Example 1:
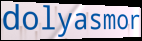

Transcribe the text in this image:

dolyasmor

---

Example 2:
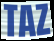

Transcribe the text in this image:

TAZ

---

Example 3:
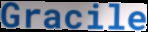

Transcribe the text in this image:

Gracile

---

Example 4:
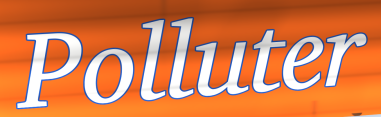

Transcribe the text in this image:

Polluter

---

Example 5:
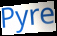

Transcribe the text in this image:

Pyre